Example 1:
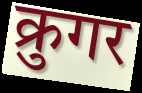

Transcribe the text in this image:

क्रुगर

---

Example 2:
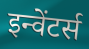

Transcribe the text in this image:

इन्वेंटर्स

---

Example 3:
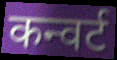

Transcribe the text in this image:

कन्वर्ट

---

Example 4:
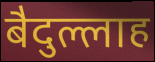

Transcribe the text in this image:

बैदुल्लाह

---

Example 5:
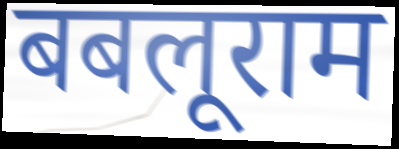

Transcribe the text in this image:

बबलूराम